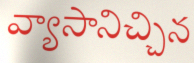
వ్యాసానిచ్చిన